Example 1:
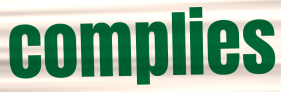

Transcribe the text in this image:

complies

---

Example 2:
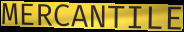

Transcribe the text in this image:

MERCANTILE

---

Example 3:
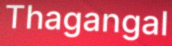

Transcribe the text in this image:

Thagangal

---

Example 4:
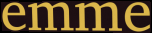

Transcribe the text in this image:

emme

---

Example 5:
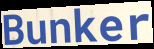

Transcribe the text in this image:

Bunker